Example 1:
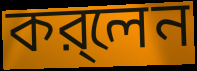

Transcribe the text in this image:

কর্‌লেন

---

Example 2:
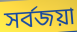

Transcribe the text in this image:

সর্বজয়া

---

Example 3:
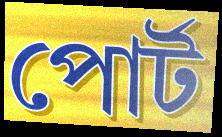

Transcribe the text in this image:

পোর্ট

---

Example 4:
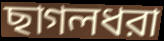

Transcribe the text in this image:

ছাগলধরা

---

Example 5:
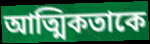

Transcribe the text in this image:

আত্মিকতাকে